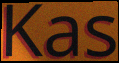
Kas